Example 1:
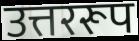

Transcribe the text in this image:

उत्तररूप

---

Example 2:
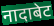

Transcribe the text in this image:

नादाबेट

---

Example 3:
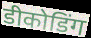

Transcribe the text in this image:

डीकोडिंग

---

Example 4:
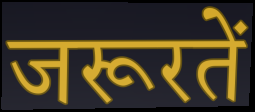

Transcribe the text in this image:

जरूरतें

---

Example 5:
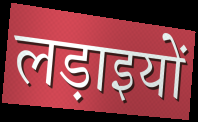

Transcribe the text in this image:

लड़ाइयों